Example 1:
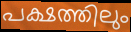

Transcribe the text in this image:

പക്ഷത്തിലും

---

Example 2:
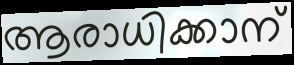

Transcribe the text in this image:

ആരാധിക്കാന്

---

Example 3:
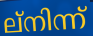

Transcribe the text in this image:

ല്നിന്ന്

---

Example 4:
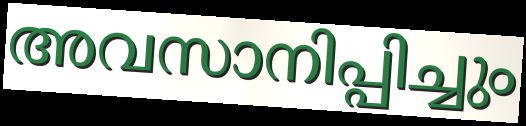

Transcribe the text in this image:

അവസാനിപ്പിച്ചും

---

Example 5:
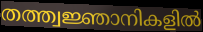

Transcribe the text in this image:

തത്ത്വജ്ഞാനികളിൽ